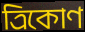
ত্রিকোণ